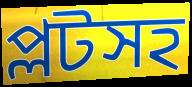
প্লটসহ